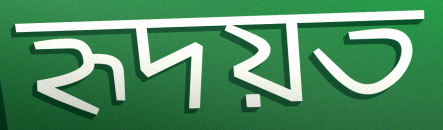
হৃদয়ত